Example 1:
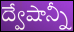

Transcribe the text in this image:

ద్వేషాన్నీ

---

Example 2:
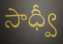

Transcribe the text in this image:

సాధ్వీ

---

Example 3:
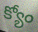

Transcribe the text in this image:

క్యోం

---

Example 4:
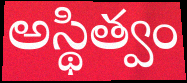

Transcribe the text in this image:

అస్థిత్వం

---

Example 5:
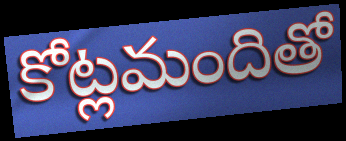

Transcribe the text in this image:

కోట్లమందితో